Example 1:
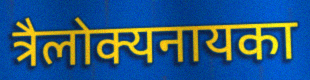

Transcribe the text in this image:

त्रैलोक्यनायका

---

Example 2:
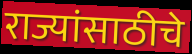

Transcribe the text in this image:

राज्यांसाठीचे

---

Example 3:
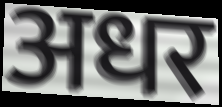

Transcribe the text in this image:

अधर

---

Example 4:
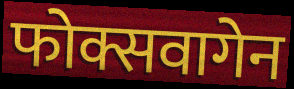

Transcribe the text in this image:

फोक्सवागेन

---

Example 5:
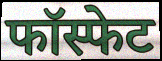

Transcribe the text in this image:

फॉस्फेट